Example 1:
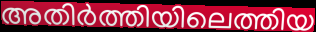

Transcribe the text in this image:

അതിർത്തിയിലെത്തിയ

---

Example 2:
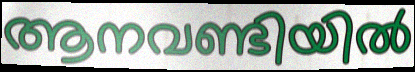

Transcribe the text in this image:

ആനവണ്ടിയിൽ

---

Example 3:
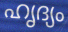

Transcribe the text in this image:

ഹൃദ്യം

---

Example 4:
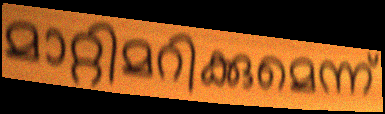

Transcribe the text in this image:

മാറ്റിമറിക്കുമെന്ന്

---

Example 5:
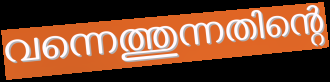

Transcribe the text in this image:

വന്നെത്തുന്നതിന്റെ